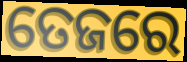
ତେଜରେ